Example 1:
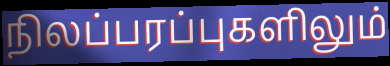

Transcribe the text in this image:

நிலப்பரப்புகளிலும்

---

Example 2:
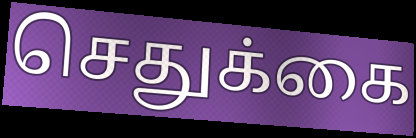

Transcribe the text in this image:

செதுக்கை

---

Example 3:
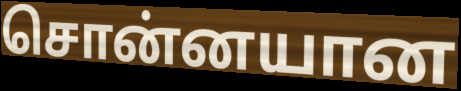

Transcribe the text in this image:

சொன்னயான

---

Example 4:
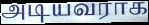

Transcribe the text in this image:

அடியவராக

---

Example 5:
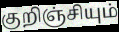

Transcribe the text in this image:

குறிஞ்சியும்